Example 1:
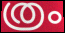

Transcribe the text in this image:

ത്രം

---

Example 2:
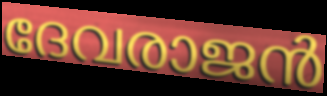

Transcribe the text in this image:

ദേവരാജൻ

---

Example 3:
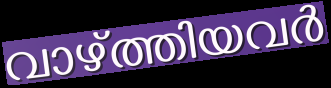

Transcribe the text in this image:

വാഴ്ത്തിയവർ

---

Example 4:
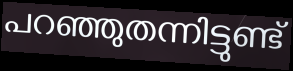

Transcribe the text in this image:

പറഞ്ഞുതന്നിട്ടുണ്ട്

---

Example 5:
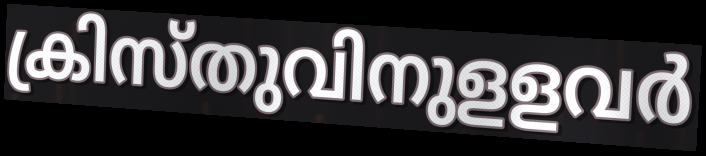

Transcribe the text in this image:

ക്രിസ്തുവിനുളളവർ